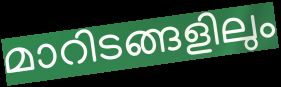
മാറിടങ്ങളിലും